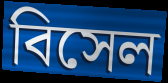
বিসেল